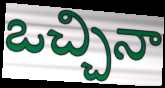
ఒచ్చినా